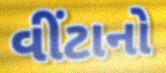
વીંટાનો